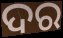
ଦର